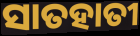
ସାତହାତୀ